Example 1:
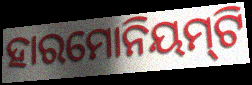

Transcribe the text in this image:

ହାରମୋନିୟମ୍‍ଟି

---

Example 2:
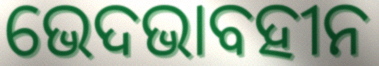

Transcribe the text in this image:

ଭେଦଭାବହୀନ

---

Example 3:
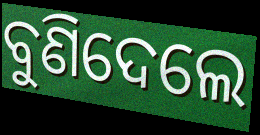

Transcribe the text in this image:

ବୁଣିଦେଲେ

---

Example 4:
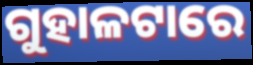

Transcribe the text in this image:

ଗୁହାଳଟାରେ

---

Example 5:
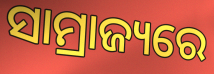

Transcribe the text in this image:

ସାମ୍ରାଜ୍ୟରେ